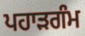
ਪਹਾੜਗੰਮ